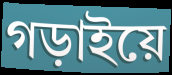
গড়াইয়ে